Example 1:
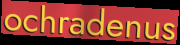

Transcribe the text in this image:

ochradenus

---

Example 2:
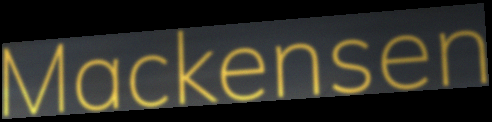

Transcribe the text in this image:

Mackensen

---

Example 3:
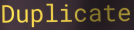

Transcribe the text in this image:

Duplicate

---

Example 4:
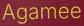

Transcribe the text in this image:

Agamee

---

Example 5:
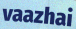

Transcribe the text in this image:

vaazhai